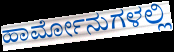
ಹಾರ್ಮೋನುಗಳಲ್ಲಿ